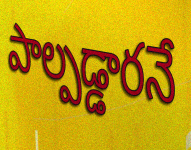
పాల్పడ్డారనే